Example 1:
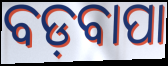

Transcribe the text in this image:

ବଡ଼ବାପା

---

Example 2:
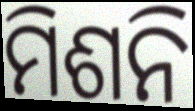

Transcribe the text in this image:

ମିଶନି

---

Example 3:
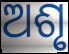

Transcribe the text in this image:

ଅଶୃ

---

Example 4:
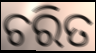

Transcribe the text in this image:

ଚରିତ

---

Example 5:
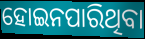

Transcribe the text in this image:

ହୋଇନପାରିଥିବା